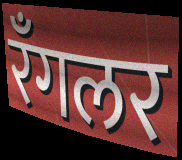
रॅंगलर